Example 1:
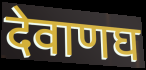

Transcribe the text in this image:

देवाणघ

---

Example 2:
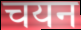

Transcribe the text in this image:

चयन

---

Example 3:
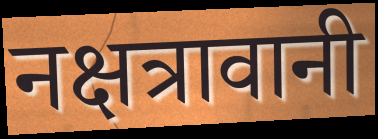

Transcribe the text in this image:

नक्षत्रावानी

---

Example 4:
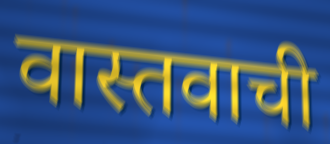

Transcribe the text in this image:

वास्तवाची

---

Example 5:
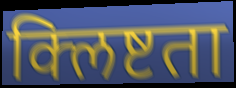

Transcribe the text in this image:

क्‍लिष्टता